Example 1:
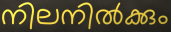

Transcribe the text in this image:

നിലനിൽക്കും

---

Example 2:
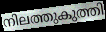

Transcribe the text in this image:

നിലത്തുകുത്തി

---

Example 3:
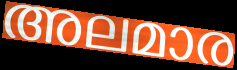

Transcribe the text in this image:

അലമാര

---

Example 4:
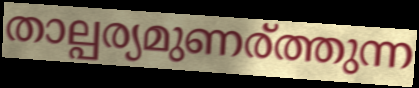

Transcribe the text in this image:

താല്പര്യമുണര്ത്തുന്ന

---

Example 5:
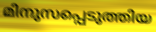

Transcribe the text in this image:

മിനുസപ്പെടുത്തിയ